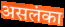
असलंका